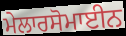
ਮੇਲਾਰਸੋਮਾਈਨ